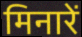
मिनारें